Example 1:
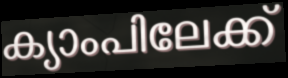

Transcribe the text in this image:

ക്യാംപിലേക്ക്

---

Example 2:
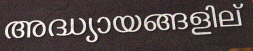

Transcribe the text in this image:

അദ്ധ്യായങ്ങളില്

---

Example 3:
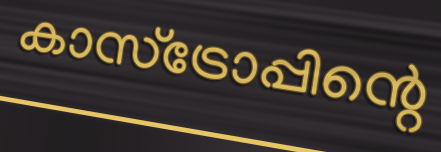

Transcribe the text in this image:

കാസ്ട്രോപ്പിന്റെ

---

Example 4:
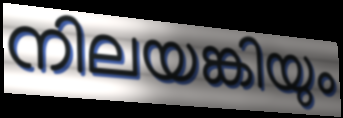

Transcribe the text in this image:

നിലയങ്കിയും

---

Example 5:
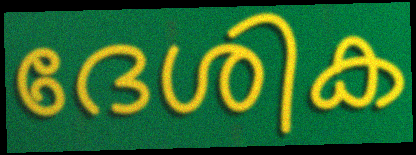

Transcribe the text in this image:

ദേശിക